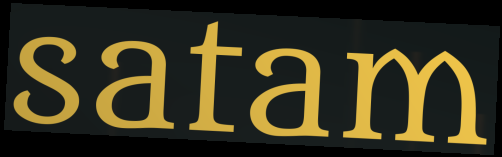
satam